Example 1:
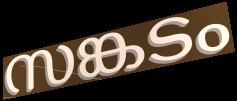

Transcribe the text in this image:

സങ്കടം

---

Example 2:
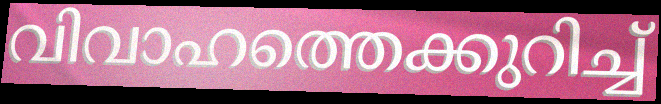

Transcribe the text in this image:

വിവാഹത്തെക്കുറിച്ച്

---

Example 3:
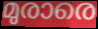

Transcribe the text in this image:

മുരാരെ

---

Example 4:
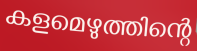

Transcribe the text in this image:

കളമെഴുത്തിന്റെ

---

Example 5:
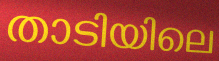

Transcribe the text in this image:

താടിയിലെ